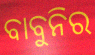
ବାବୁନିର